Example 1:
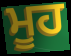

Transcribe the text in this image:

ਮੂਹ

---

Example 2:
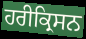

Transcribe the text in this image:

ਹਰੀਕ੍ਰਿਸਨ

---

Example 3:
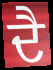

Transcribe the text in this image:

ਦੈ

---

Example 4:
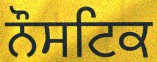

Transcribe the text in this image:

ਨੌਸਟਿਕ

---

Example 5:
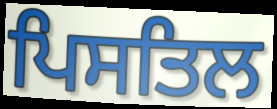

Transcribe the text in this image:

ਪਿਸਤਿਲ